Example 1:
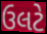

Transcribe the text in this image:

ઉલટે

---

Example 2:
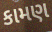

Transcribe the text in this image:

કામણ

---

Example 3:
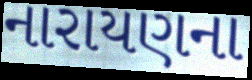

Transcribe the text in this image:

નારાયણના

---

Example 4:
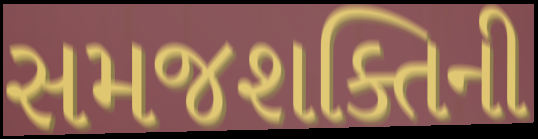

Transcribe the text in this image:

સમજશક્તિની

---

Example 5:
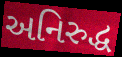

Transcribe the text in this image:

અનિરુદ્ધ